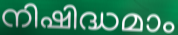
നിഷിദ്ധമാം